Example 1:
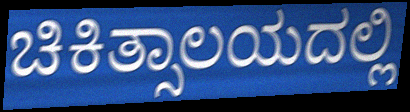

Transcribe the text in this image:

ಚಿಕಿತ್ಸಾಲಯದಲ್ಲಿ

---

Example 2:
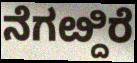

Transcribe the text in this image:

ನೆಗೞ್ದಿರೆ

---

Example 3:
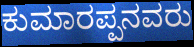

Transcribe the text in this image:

ಕುಮಾರಪ್ಪನವರು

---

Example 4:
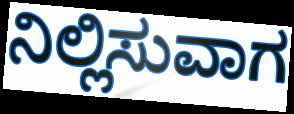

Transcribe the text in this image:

ನಿಲ್ಲಿಸುವಾಗ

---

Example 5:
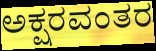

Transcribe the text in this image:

ಅಕ್ಷರವಂತರ